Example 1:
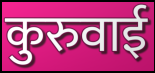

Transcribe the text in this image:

कुरुवाई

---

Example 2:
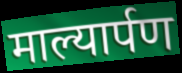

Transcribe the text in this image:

माल्यार्पण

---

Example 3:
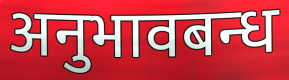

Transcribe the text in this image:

अनुभावबन्ध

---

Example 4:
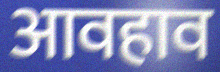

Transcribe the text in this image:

आवहाव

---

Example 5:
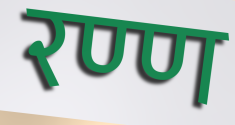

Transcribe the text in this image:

रण्ण